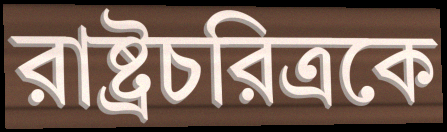
রাষ্ট্রচরিত্রকে